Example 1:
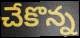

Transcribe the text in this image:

చేకొన్న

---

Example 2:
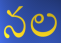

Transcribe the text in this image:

నల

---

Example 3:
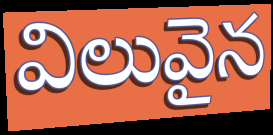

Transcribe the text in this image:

విలువైన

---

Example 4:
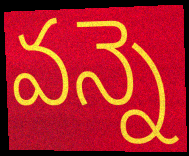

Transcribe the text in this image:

వన్నె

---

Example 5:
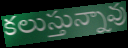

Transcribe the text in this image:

కలుస్తున్నావు